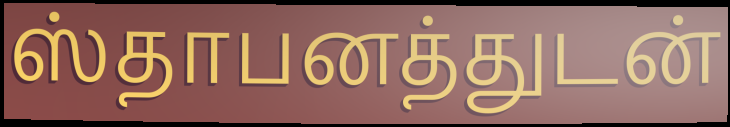
ஸ்தாபனத்துடன்